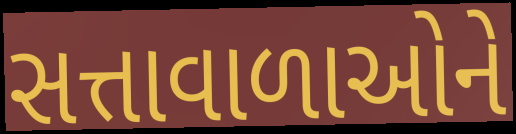
સત્તાવાળાઓને